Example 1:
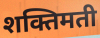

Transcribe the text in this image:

शक्तिमती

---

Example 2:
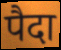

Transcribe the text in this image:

पैदा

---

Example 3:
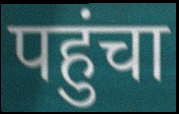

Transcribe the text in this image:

पहुंचा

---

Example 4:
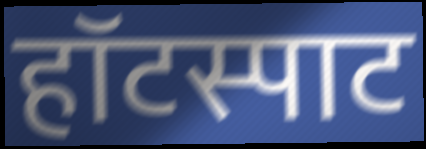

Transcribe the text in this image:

हॉटस्पाट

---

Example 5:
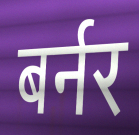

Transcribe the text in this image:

बर्नर